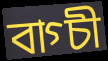
বাগ্চী